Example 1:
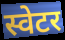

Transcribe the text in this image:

स्वेटर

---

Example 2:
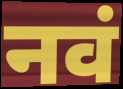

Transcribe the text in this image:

नवं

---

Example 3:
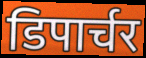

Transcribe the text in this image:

डिपार्चर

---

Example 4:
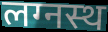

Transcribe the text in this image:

लग्नस्थ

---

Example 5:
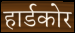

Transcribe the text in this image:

हार्डकोर